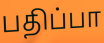
பதிப்பா